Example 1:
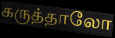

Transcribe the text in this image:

கருத்தாலோ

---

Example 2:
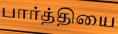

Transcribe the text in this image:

பார்த்தியை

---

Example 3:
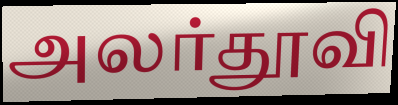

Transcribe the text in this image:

அலர்தூவி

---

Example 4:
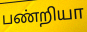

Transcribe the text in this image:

பண்றியா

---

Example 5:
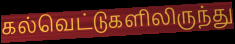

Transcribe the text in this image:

கல்வெட்டுகளிலிருந்து